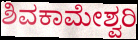
ಶಿವಕಾಮೇಶ್ವರಿ